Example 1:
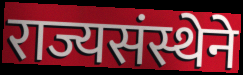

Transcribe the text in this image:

राज्यसंस्थेने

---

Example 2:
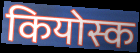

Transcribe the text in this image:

कियोस्क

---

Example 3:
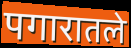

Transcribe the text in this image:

पगारातले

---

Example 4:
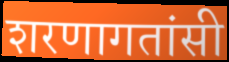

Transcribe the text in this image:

शरणागतांसी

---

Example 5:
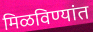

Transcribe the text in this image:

मिळविण्यांत